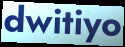
dwitiyo